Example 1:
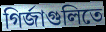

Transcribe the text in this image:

গির্জাগুলিতে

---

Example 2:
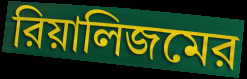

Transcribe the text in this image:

রিয়ালিজমের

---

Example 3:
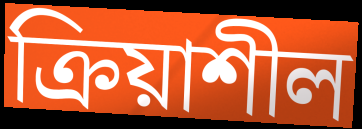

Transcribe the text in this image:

ক্রিয়াশীল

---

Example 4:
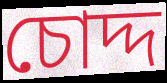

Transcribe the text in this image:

চোদ্দ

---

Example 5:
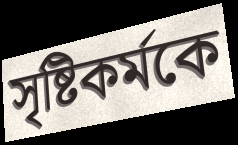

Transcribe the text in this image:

সৃষ্টিকর্মকে